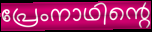
പ്രേംനാഥിന്റെ